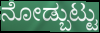
ನೋಡ್ಬುಟ್ಟು